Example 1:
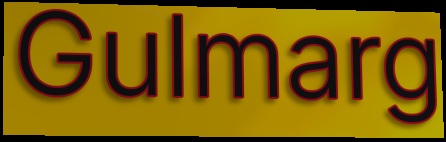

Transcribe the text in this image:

Gulmarg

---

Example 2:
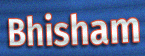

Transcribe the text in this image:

Bhisham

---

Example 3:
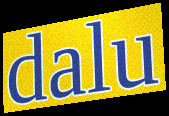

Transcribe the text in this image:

dalu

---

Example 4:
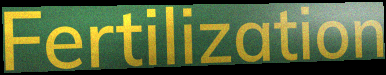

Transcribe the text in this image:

Fertilization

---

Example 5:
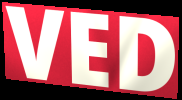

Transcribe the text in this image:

VED